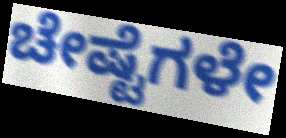
ಚೇಷ್ಟೆಗಳೇ